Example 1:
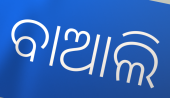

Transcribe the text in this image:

ବାଆଲି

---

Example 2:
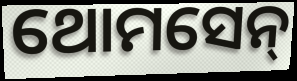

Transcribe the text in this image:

ଥୋମସେନ୍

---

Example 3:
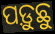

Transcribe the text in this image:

ପଡ଼ୁଛୁ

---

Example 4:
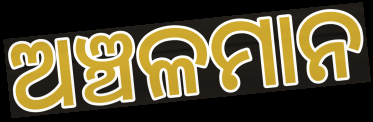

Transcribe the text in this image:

ଅଞ୍ଚଳମାନ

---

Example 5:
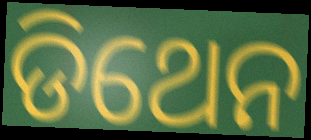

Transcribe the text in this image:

ଡିଥେନ